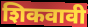
शिकवावी